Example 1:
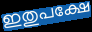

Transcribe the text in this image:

ഇതുപക്ഷേ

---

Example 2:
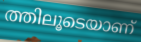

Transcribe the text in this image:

ത്തിലൂടെയാണ്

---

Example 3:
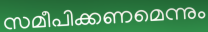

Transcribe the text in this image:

സമീപിക്കണമെന്നും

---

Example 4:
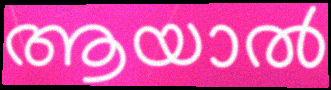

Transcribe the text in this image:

ആയാൽ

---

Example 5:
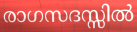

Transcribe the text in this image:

രാഗസദസ്സിൽ